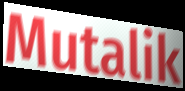
Mutalik